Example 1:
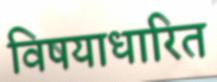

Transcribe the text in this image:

विषयाधारित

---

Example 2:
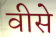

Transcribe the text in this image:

वीसे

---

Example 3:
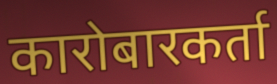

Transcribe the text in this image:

कारोबारकर्ता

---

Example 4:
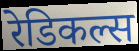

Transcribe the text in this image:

रेडिकल्स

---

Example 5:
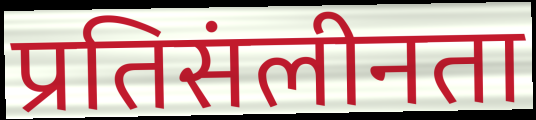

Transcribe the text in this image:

प्रतिसंलीनता